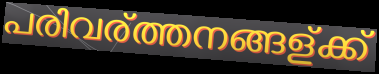
പരിവര്ത്തനങ്ങള്ക്ക്